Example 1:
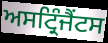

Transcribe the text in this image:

ਅਸਟ੍ਰਿੰਜੈਂਟਸ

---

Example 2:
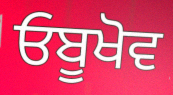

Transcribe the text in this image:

ਓਬੂਖੋਵ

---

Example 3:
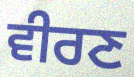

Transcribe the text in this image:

ਵੀਰਣ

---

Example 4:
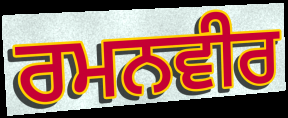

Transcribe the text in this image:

ਰਮਨਵੀਰ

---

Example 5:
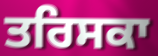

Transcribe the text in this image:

ਤਰਿਸਕਾ